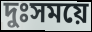
দুঃসময়ে